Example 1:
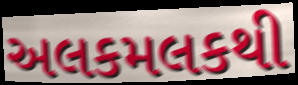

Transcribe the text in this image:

અલકમલકથી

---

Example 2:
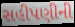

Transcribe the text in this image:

સહીપણીની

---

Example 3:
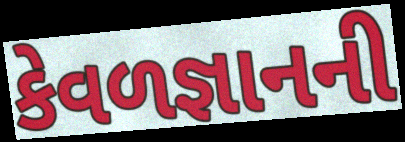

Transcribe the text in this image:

કેવળજ્ઞાનની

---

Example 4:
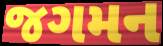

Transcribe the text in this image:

જગમન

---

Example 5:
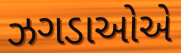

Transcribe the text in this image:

ઝગડાઓએ